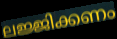
ലജ്ജിക്കണം